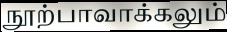
நூற்பாவாக்கலும்